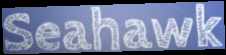
Seahawk